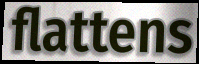
flattens